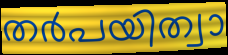
തർപയിത്വാ